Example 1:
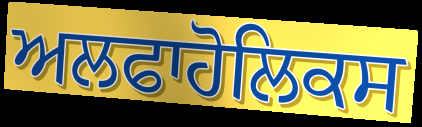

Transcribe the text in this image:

ਅਲਫਾਹੋਲਿਕਸ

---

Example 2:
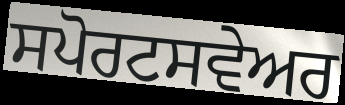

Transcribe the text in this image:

ਸਪੋਰਟਸਵੇਅਰ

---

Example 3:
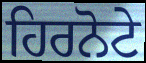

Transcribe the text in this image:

ਹਿਰਨੋਟੇ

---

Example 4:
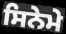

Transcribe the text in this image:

ਸਿਨੇਮੇ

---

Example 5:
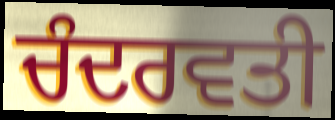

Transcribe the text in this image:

ਚੰਦਰਵਤੀ